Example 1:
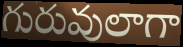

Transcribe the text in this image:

గురువులాగా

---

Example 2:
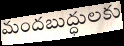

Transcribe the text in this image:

మందబుద్ధులకు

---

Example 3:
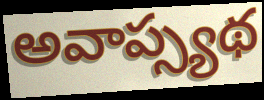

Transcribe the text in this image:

అవాప్స్యథ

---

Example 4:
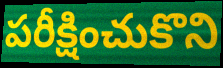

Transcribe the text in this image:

పరీక్షించుకొని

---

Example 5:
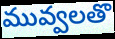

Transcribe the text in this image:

మువ్వలతొ